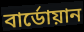
বার্ডোয়ান